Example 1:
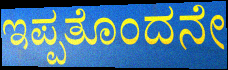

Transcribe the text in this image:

ಇಪ್ಪತೊಂದನೇ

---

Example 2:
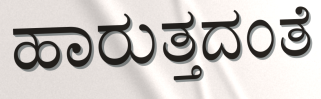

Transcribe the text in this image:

ಹಾರುತ್ತದಂತೆ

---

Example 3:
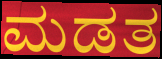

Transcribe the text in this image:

ಮಡತ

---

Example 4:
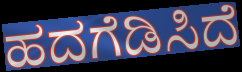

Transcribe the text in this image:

ಹದಗೆಡಿಸಿದೆ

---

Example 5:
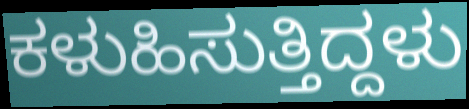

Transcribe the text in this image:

ಕಳುಹಿಸುತ್ತಿದ್ದಳು